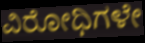
ವಿರೋಧಿಗಳೇ